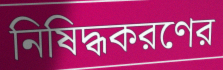
নিষিদ্ধকরণের